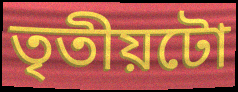
তৃতীয়টো